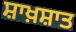
ਸ਼ਾਖ਼ਸ਼ਾਤ